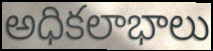
అధికలాభాలు